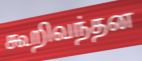
கூறிவந்தன